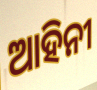
ଆହିନୀ